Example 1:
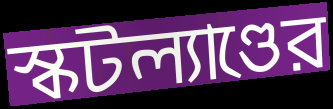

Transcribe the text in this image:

স্কটল্যাণ্ডের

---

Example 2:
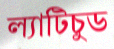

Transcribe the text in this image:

ল্যাটিচুড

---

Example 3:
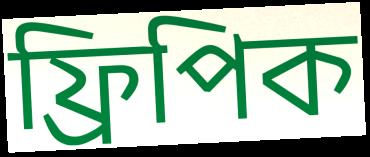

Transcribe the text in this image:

ফ্রিপিক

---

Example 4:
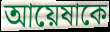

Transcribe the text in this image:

আয়েষাকে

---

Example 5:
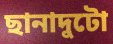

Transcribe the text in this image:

ছানাদুটো